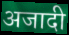
अजादी